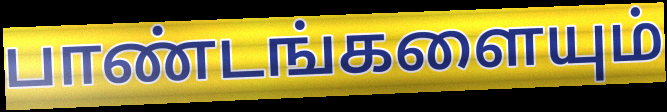
பாண்டங்களையும்